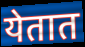
येतात